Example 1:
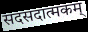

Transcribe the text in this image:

सदसदात्मकम्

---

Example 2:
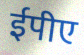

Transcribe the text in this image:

ईपीए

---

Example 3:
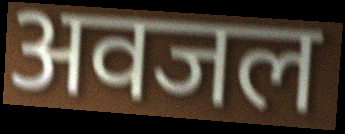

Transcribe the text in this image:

अवजल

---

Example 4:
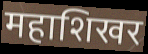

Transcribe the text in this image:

महाशिखर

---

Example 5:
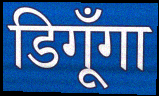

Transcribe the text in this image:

डिगूँगा